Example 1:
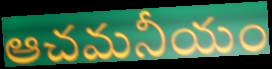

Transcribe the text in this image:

ఆచమనీయం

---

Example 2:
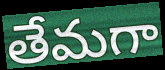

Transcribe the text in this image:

తేమగా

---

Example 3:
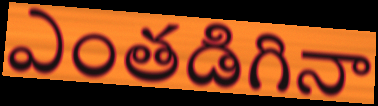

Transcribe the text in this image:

ఎంతడిగినా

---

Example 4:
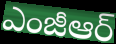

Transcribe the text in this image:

ఎంజీఆర్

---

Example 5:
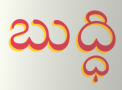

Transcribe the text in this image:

బుద్ధి